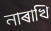
নাৰাখি